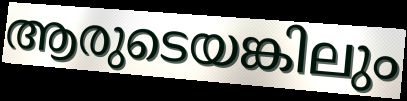
ആരുടെയങ്കിലും